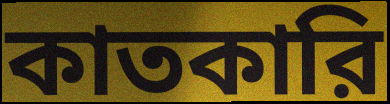
কাতকারি